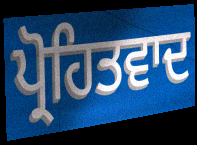
ਪ੍ਰੋਹਿਤਵਾਦ